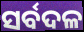
ସର୍ବଦଳ